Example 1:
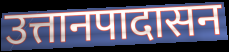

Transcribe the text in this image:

उत्तानपादासन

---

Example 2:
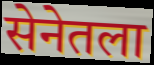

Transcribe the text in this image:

सेनेतला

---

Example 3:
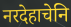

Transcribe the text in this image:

नरदेहाचेनि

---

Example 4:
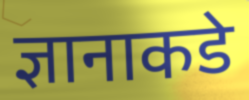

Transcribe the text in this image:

ज्ञानाकडे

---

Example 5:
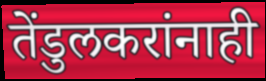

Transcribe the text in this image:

तेंडुलकरांनाही